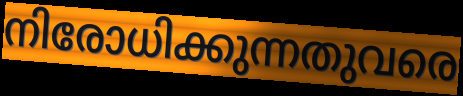
നിരോധിക്കുന്നതുവരെ